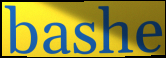
bashe